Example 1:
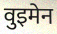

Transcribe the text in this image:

वुइमेन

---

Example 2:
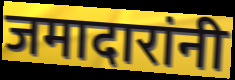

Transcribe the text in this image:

जमादारांनी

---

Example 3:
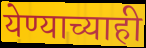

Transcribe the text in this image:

येण्याच्याही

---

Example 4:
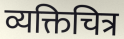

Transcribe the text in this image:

व्यक्तिचित्र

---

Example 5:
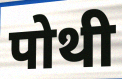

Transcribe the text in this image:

पोथी